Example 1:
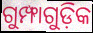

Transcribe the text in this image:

ଗୁମ୍ଫାଗୁଡ଼ିକ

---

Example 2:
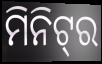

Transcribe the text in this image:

ମିନିଟ୍‌ର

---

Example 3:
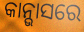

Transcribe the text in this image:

କାନ୍ଭାସରେ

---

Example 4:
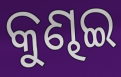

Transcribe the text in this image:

କୁଣ୍ଢଇ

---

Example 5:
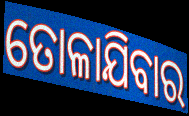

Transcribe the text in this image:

ତୋଳାଯିବାର